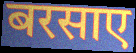
बरसाए